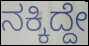
ನಕ್ಕಿದ್ದೇ